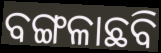
ବଙ୍ଗଳାଛବି